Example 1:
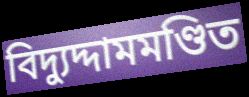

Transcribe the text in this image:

বিদ্যুদ্দামমণ্ডিত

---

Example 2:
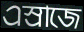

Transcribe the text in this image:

এস্রাজে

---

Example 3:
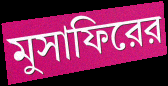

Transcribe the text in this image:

মুসাফিরের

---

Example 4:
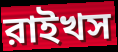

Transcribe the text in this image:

রাইখস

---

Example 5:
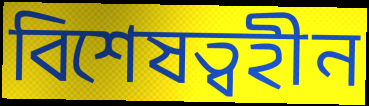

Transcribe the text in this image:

বিশেষত্বহীন